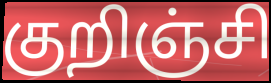
குறிஞ்சி